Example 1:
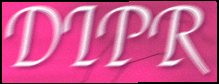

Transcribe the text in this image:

DIPR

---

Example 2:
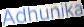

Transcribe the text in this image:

Adhunika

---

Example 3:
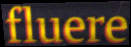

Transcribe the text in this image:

fluere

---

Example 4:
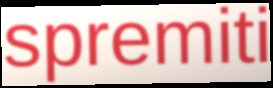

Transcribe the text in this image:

spremiti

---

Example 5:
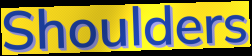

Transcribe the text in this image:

Shoulders